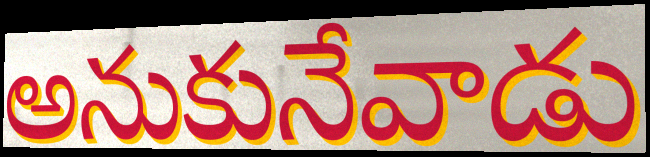
అనుకునేవాడు